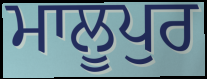
ਮਾਲੂਪੁਰ